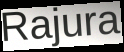
Rajura